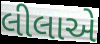
લીલાએ